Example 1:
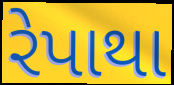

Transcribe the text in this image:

રેપાથા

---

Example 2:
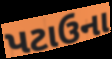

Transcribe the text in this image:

પટાઉના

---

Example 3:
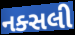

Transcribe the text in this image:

નક્સલી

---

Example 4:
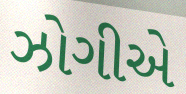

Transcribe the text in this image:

ઝોગીએ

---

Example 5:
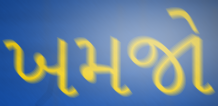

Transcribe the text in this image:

ખમજો